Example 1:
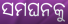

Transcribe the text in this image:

ସମଘନକୁ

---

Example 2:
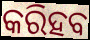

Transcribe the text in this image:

କରିହବ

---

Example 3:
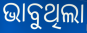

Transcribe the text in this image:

ଭାବୁଥିଲା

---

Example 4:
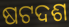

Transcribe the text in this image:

ଷଟଦଶ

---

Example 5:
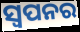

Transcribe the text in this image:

ସ୍ଵପନର